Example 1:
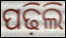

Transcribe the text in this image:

ପଢ଼ିଲି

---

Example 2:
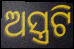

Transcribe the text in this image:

ଅସ୍ତ୍ରଟି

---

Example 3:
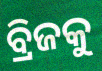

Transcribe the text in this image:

ବ୍ରିଜକୁ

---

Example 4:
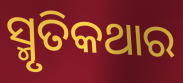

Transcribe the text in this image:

ସ୍ମୃତିକଥାର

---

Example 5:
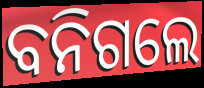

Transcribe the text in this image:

ବନିଗଲେ